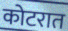
कोटरात